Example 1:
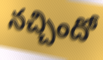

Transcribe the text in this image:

నచ్చిందో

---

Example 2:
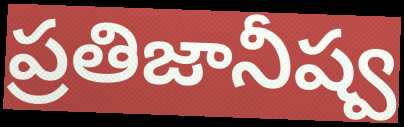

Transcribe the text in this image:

ప్రతిజానీష్వ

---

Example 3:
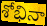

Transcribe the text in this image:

శోభినా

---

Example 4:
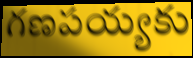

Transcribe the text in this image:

గణపయ్యకు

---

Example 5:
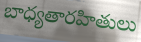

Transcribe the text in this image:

బాధ్యతారహితులు